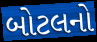
બોટલનો